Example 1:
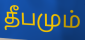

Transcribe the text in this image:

தீபமும்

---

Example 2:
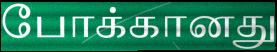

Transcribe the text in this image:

போக்கானது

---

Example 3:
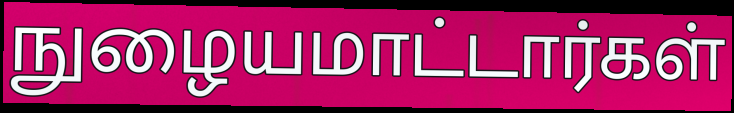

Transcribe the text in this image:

நுழையமாட்டார்கள்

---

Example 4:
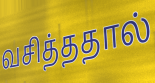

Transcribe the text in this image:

வசித்ததால்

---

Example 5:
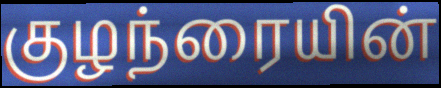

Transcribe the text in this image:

குழந்ரையின்